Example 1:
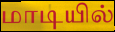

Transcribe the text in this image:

மாடியில்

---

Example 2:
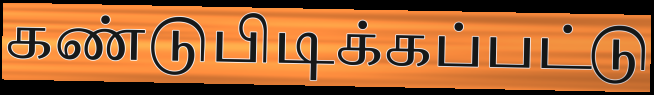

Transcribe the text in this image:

கண்டுபிடிக்கப்பட்டு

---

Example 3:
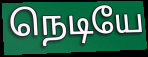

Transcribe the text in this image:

நெடியே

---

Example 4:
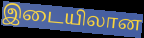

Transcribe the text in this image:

இடையிலான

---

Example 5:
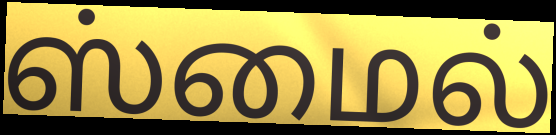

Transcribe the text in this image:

ஸ்மைல்